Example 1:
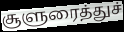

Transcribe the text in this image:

சூளுரைத்துச்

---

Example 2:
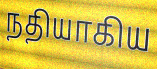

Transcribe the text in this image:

நதியாகிய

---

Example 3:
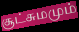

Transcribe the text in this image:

சூட்சுமமும்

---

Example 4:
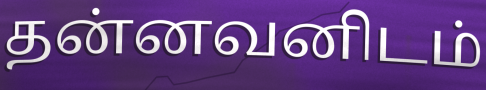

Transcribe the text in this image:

தன்னவனிடம்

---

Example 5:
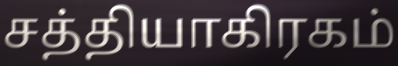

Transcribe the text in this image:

சத்தியாகிரகம்